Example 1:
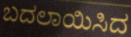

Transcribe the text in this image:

ಬದಲಾಯಿಸಿದ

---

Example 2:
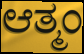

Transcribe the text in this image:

ಆತ್ಮಂ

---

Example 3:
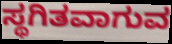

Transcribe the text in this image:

ಸ್ಥಗಿತವಾಗುವ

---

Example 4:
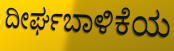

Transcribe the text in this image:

ದೀರ್ಘಬಾಳಿಕೆಯ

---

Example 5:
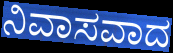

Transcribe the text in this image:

ನಿವಾಸವಾದ